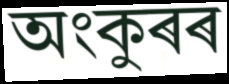
অংকুৰৰ